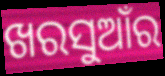
ଖରସୁଆଁର